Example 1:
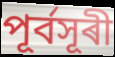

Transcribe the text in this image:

পূৰ্বসূৰী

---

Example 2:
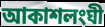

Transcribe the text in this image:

আকাশলংঘী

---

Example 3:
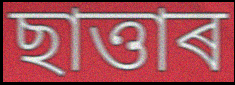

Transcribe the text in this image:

ছাত্তাৰ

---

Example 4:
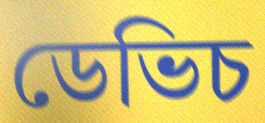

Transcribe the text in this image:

ডেভিচ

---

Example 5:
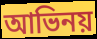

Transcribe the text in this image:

আভিনয়